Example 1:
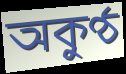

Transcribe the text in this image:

অকুণ্ঠ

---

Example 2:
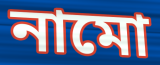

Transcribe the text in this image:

নামো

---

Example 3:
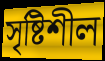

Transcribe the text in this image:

সৃষ্টিশীল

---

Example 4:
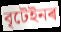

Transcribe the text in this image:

বৃটেইনৰ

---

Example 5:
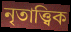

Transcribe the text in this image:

নৃতাত্ত্বিক